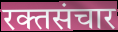
रक्तसंचार